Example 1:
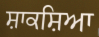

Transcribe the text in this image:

ਸ਼ਾਕਸ਼ਿਆ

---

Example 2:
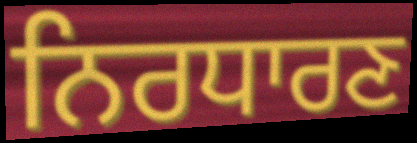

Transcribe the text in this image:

ਨਿਰਧਾਰਣ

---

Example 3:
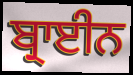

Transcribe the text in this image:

ਬ੍ਰਾਈਨ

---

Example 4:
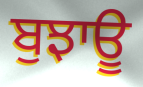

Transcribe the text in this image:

ਬੁਝਾਊ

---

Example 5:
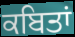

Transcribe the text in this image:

ਕਬਿਤਾਂ